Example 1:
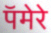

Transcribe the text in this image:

पॅमेरे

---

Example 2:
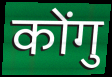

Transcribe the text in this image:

कोंगु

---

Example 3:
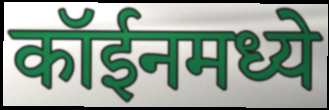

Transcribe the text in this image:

कॉईनमध्ये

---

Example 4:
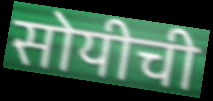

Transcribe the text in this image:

सोयीची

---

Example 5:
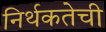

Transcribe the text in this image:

निर्थकतेची